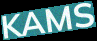
KAMS